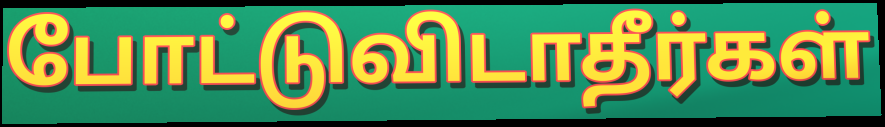
போட்டுவிடாதீர்கள்